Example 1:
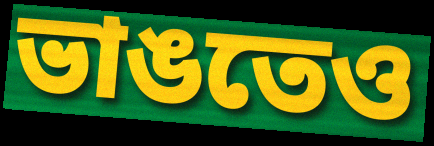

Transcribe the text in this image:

ভাঙতেও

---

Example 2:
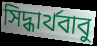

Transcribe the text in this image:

সিদ্ধার্থবাবু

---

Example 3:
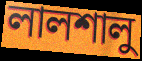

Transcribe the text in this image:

লালশালু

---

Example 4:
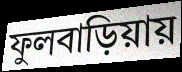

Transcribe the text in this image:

ফুলবাড়িয়ায়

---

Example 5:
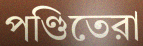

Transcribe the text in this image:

পণ্ডিতেরা